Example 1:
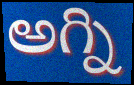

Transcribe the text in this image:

అగ్ని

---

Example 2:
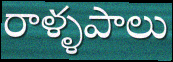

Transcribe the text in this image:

రాళ్ళపాలు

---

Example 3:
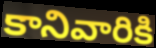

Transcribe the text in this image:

కానివారికి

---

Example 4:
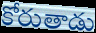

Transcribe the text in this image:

కోరుతాడు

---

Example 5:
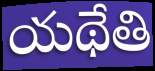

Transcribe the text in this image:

యథేతి